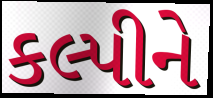
કલ્પીને